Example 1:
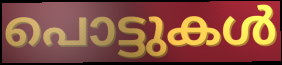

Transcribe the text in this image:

പൊട്ടുകൾ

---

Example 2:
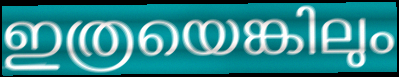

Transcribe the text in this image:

ഇത്രയെങ്കിലും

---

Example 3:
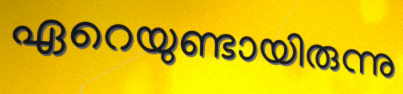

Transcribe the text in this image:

ഏറെയുണ്ടായിരുന്നു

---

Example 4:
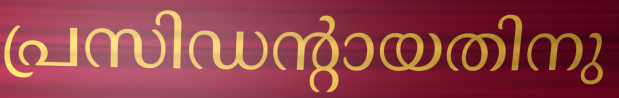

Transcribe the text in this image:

പ്രസിഡന്റായതിനു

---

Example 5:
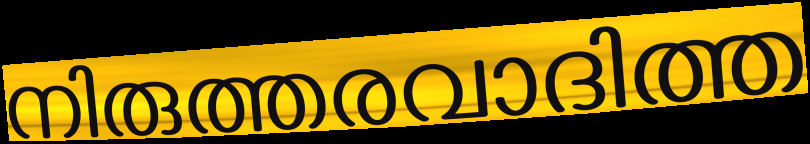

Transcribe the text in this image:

നിരുത്തരവാദിത്ത